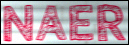
NAER